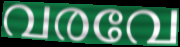
വരവേ